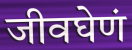
जीवघेणं